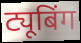
ट्यूबिंग